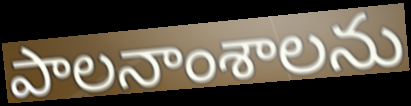
పాలనాంశాలను